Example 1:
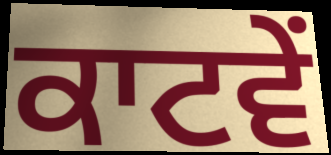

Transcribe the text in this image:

ਕਾਟਵੇਂ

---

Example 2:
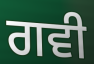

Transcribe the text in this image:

ਗਵੀ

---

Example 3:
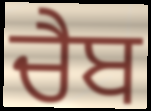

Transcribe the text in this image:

ਚੈਬ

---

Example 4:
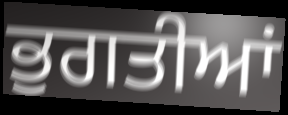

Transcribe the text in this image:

ਭੁਗਤੀਆਂ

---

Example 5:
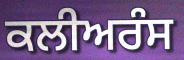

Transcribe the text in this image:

ਕਲੀਅਰੰਸ